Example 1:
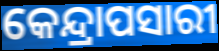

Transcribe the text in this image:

କେନ୍ଦ୍ରାପସାରୀ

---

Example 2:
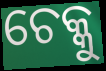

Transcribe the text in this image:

ଚେକ୍କୁ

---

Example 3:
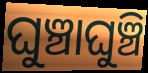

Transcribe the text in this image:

ଘୁଞ୍ଚାଘୁଞ୍ଚି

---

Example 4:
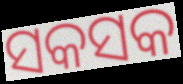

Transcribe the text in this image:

ସକସକ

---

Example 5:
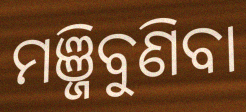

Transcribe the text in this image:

ମଞ୍ଜିବୁଣିବା